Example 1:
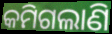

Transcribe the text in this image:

କମିଗଲାଣି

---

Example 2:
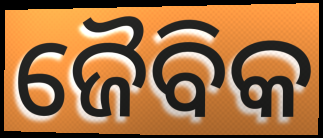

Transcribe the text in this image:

ଜୈବିକ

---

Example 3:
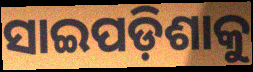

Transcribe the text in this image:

ସାଇପଡ଼ିଶାକୁ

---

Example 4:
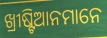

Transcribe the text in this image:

ଖ୍ରୀଷ୍ଟିଆନମାନେ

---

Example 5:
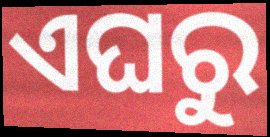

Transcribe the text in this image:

ଏଘରୁ